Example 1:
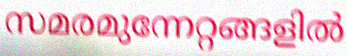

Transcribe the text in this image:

സമരമുന്നേറ്റങ്ങളിൽ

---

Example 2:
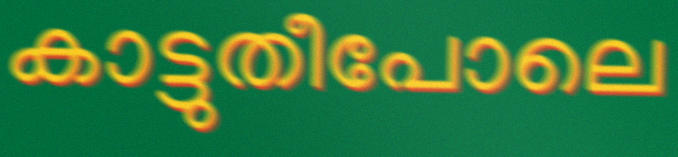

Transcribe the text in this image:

കാട്ടുതീപോലെ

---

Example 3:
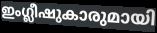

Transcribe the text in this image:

ഇംഗ്ലീഷുകാരുമായി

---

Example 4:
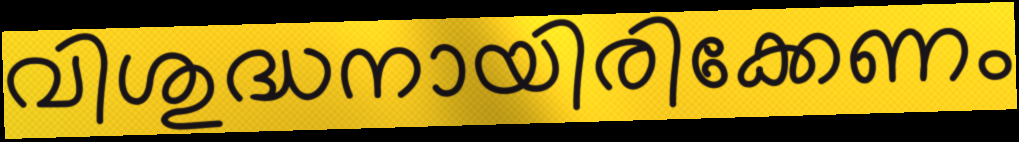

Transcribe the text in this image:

വിശുദ്ധനായിരിക്കേണം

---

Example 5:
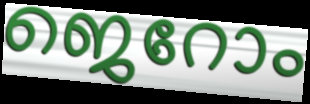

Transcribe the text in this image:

ജെറോം